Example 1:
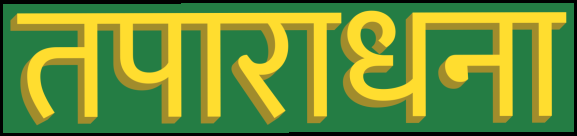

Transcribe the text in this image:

तपाराधना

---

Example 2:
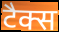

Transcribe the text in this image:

टैक्स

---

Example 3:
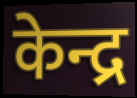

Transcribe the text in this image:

केन्‍द्र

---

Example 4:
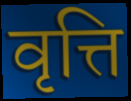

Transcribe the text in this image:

वृत्ति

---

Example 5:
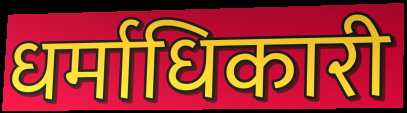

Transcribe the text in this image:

धर्माधिकारी